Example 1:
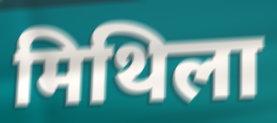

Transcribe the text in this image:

मिथिला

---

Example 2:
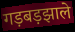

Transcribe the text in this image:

गड़बड़झाले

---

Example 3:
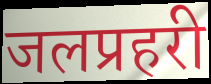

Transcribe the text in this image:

जलप्रहरी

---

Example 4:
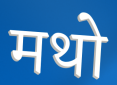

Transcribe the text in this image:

मथो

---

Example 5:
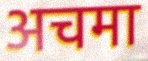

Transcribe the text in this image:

अचमा